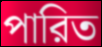
পারিত